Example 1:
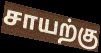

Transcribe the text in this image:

சாயற்கு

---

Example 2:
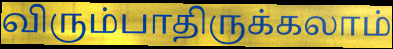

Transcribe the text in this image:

விரும்பாதிருக்கலாம்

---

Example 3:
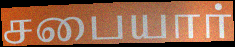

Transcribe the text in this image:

சபையார்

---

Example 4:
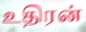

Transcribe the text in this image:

உதிரன்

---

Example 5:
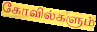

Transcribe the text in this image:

கோவில்களும்